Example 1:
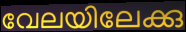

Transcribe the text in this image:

വേലയിലേക്കു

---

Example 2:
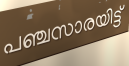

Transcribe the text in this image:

പഞ്ചസാരയിട്ട്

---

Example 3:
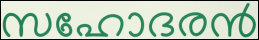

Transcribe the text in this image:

സഹോദരൻ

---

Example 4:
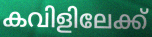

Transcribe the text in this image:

കവിളിലേക്ക്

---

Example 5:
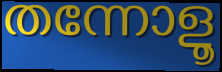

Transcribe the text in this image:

തന്നോളൂ